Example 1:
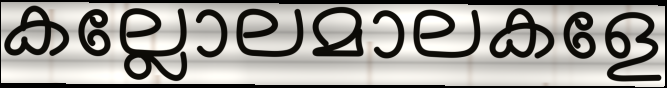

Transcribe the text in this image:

കല്ലോലമാലകളേ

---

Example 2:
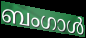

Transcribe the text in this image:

ബംഗാൾ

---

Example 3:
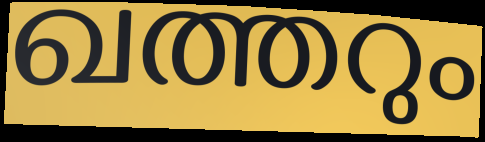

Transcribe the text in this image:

ഖത്തറും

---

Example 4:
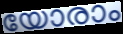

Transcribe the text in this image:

യോരാം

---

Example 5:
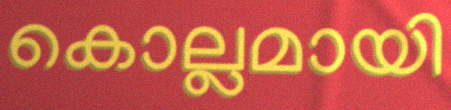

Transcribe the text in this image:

കൊല്ലമായി